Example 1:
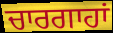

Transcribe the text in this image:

ਚਾਰਗਾਹਾਂ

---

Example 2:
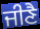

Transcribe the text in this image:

ਜੀਣੈ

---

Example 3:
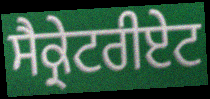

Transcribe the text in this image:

ਸੈਕ੍ਰੇਟਰੀਏਟ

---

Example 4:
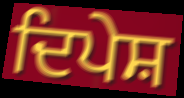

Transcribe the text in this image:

ਦਿਪੇਸ਼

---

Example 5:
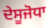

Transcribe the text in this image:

ਦੇਸੂਜੋਧਾ